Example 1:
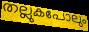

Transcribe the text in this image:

തല്ലുകപോലും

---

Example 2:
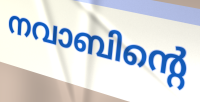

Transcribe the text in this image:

നവാബിന്റെ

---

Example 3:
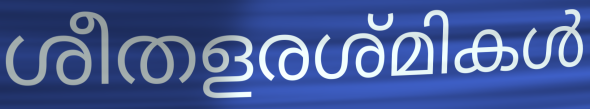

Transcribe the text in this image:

ശീതളരശ്മികൾ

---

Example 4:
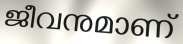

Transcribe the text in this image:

ജീവനുമാണ്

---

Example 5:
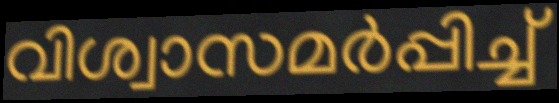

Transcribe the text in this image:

വിശ്വാസമർപ്പിച്ച്